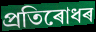
প্ৰতিৰোধৰ